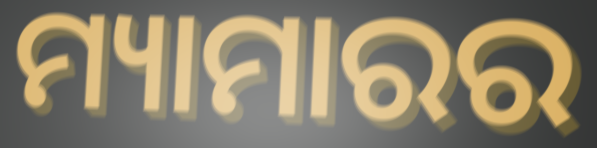
ମ୍ୟାମାରର